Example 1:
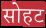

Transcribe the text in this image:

सोहट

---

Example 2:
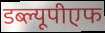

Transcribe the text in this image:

डब्ल्यूपीएफ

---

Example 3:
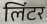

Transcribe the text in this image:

लिंटर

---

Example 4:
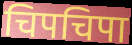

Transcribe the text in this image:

चिपचिपा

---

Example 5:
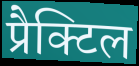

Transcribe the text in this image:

प्रैक्टिल